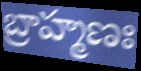
బ్రాహ్మణః